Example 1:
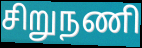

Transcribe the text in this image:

சிறுநணி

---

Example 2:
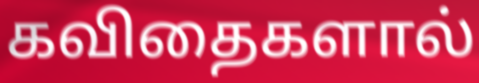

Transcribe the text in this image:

கவிதைகளால்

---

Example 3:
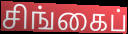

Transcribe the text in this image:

சிங்கைப்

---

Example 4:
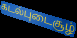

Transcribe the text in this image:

கடல்புடைசூழ்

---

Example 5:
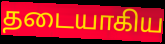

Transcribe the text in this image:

தடையாகிய